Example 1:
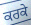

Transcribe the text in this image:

ਕਰਕੇ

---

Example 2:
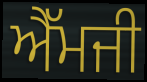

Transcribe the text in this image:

ਐੱਮਜੀ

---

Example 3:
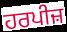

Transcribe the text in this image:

ਹਰਪੀਜ਼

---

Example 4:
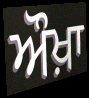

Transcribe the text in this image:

ਔਖ਼ਾ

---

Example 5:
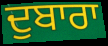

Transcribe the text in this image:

ਦੁਬਾਰਾ